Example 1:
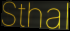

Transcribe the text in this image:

Sthal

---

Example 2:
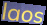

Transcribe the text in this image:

laos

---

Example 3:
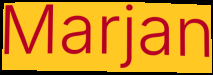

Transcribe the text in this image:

Marjan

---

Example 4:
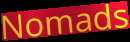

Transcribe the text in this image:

Nomads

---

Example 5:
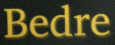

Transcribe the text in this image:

Bedre